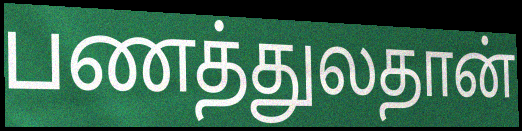
பணத்துலதான்